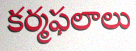
కర్మఫలాలు